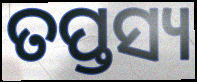
ତପ୍ତସ୍ୟ